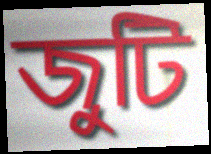
জুটি